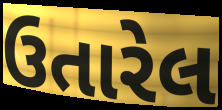
ઉતારેલ